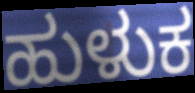
ಹುಳುಕ